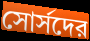
সোর্সদের